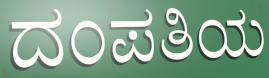
ದಂಪತಿಯ